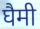
घैमी